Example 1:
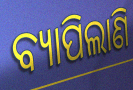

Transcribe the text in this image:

ବ୍ୟାପିଲାଣି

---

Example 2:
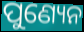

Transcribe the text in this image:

ପୁଣ୍ୟେନ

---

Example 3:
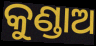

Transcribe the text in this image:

କୁଣ୍ଡାଅ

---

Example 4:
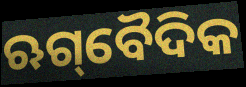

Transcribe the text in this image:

ଋଗ୍‌ବୈଦିକ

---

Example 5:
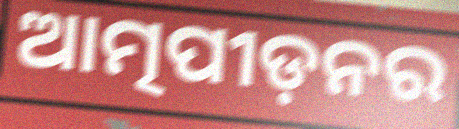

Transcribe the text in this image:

ଆତ୍ମପୀଡ଼ନର